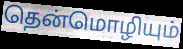
தென்மொழியும்